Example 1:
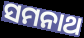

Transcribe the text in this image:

ସମନାଥ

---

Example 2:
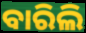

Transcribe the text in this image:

ବାରିଲି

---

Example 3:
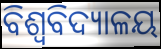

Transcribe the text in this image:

ବିଶ୍ଵବିଦ୍ୟାଳୟ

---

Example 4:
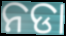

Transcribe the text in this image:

ନଡା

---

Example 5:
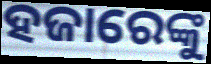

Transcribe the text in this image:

ହଜାରେଙ୍କୁ